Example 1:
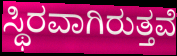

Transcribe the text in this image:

ಸ್ಥಿರವಾಗಿರುತ್ತವೆ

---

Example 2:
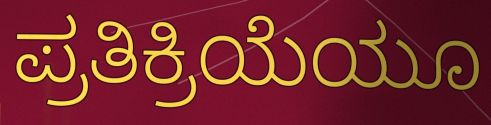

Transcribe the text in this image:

ಪ್ರತಿಕ್ರಿಯೆಯೂ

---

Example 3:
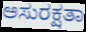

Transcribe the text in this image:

ಅಸುರಕ್ಷತಾ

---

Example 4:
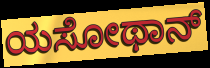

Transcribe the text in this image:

ಯಸೋಥಾನ್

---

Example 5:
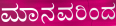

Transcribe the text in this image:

ಮಾನವರಿಂದ